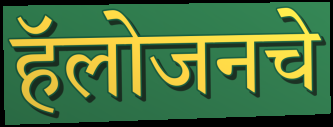
हॅलोजनचे